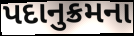
પદાનુક્રમના